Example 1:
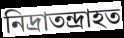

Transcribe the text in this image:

নিদ্রাতন্দ্রাহত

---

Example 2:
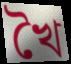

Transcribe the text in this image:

খৈ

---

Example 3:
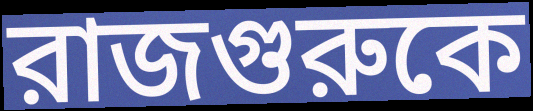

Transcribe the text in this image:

রাজগুরুকে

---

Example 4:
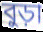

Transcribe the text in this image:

বুড়া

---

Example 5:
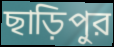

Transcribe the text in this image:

ছাড়িপুর